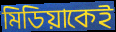
মিডিয়াকেই